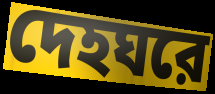
দেহঘরে